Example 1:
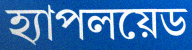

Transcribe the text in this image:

হ্যাপলয়েড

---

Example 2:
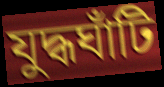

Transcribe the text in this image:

যুদ্ধঘাঁটি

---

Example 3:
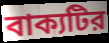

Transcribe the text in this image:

বাক্যটির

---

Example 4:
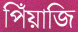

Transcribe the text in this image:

পিঁয়াজি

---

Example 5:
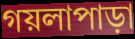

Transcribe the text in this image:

গয়লাপাড়া